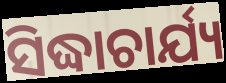
ସିଦ୍ଧାଚାର୍ଯ୍ୟ